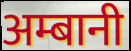
अम्‍बानी